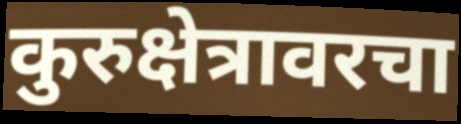
कुरुक्षेत्रावरचा